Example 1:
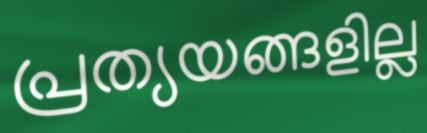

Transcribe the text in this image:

പ്രത്യയങ്ങളില്ല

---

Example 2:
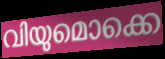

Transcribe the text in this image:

വിയുമൊക്കെ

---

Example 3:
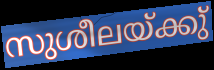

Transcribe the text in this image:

സുശീലയ്ക്കു്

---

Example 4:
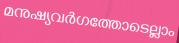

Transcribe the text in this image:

മനുഷ്യവർഗത്തോടെല്ലാം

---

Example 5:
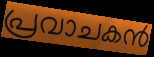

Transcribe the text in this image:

പ്രവാചകൻ